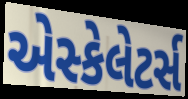
એસ્કેલેટર્સ